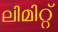
ലിമിറ്റ്